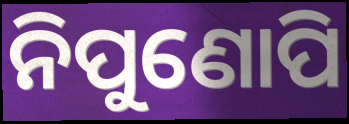
ନିପୁଣୋପି